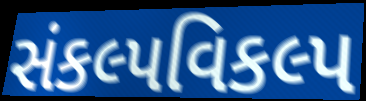
સંકલ્પવિકલ્પ